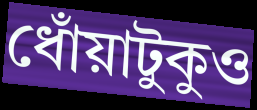
ধোঁয়াটুকুও